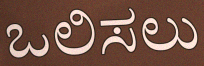
ಒಲಿಸಲು